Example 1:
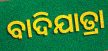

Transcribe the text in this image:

ବାଦିଯାତ୍ରା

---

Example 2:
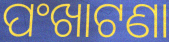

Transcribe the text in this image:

ପଂଖାଟଣା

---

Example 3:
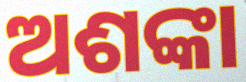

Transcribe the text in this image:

ଅଶଙ୍କା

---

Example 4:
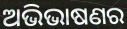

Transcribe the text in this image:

ଅଭିଭାଷଣର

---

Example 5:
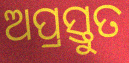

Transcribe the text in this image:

ଅପ୍ରସ୍ତୁତ